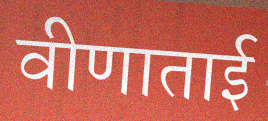
वीणाताई